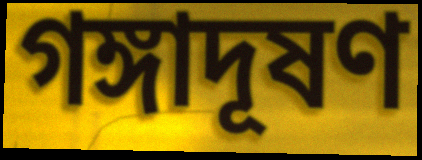
গঙ্গাদূষণ